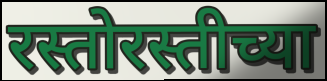
रस्तोरस्तीच्या